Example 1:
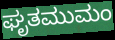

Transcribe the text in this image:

ಘೃತಮುಮಂ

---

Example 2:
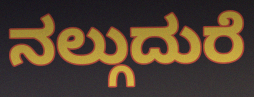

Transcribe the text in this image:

ನಲ್ಗುದುರೆ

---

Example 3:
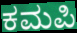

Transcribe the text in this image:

ಕಮಪಿ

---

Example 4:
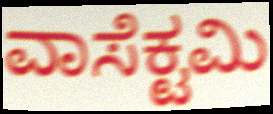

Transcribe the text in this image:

ವಾಸೆಕ್ಟಮಿ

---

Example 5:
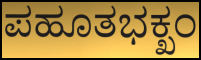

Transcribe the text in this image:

ಪಹೂತಭಕ್ಖಂ